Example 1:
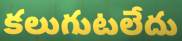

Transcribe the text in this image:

కలుగుటలేదు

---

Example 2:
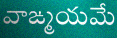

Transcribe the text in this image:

వాఙ్మయమే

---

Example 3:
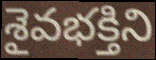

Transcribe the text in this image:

శైవభక్తిని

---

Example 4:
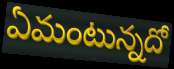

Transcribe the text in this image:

ఏమంటున్నదో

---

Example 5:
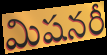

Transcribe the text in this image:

మిషనరీ